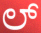
ಲ್